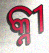
କ୍ନୀ